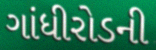
ગાંધીરોડની